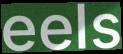
eels